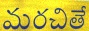
మరచితే